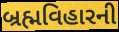
બ્રહ્મવિહારની